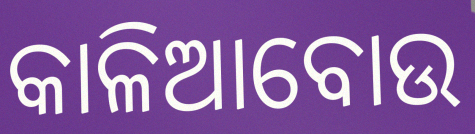
କାଳିଆବୋଉ